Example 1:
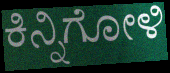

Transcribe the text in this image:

ಕಿನ್ನಿಗೋಳಿ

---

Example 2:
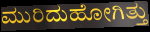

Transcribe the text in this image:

ಮುರಿದುಹೋಗಿತ್ತು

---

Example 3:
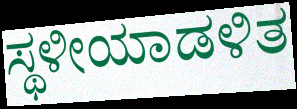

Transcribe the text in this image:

ಸ್ಥಳೀಯಾಡಳಿತ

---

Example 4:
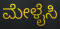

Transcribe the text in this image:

ಮೇಳೈಸಿ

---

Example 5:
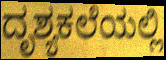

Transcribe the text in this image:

ದೃಶ್ಯಕಲೆಯಲ್ಲಿ